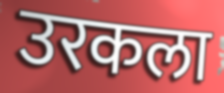
उरकला